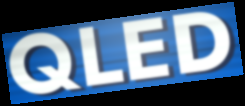
QLED